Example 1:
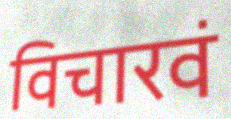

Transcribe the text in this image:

विचारवं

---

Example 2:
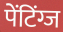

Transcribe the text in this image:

पेंटिंग्ज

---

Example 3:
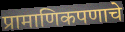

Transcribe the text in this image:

प्रामाणिकपणाचे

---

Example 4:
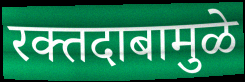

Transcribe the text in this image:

रक्तदाबामुळे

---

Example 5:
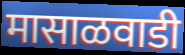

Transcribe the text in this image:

मासाळवाडी